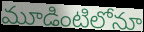
మూడింటిలోనూ